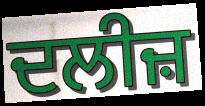
ਦਲੀਜ਼